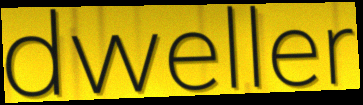
dweller